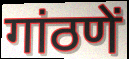
गांठणें